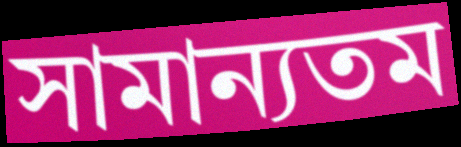
সামান্যতম